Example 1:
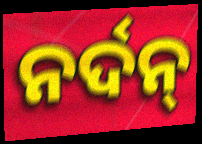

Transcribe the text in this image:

ନର୍ଦନ୍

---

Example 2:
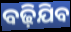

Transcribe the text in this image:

ବଢ଼ିଯିବ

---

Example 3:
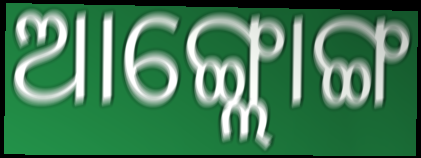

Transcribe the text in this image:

ଆଙ୍ଗ୍ଲୋଙ୍ଗ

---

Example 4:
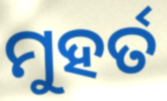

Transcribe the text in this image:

ମୁହର୍ତ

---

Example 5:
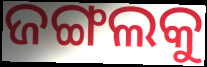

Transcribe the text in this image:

ଜଙ୍ଗଲକୁ